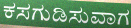
ಕಸಗುಡಿಸುವಾಗ